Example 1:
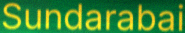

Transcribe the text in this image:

Sundarabai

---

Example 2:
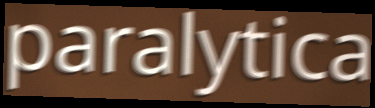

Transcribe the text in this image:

paralytica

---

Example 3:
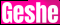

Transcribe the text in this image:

Geshe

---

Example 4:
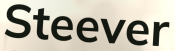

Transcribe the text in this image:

Steever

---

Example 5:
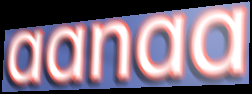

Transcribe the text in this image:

aanaa